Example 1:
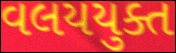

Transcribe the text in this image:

વલયયુક્ત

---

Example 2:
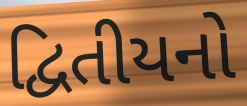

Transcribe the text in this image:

દ્વિતીયનો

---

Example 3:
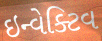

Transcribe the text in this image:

ઇન્વેક્ટિવ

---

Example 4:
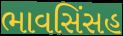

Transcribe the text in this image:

ભાવસિંસહ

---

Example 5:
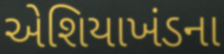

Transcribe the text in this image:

એશિયાખંડના